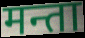
मन्ता